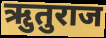
ऋुतुराज